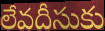
లేవదీసుకు